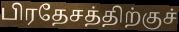
பிரதேசத்திற்குச்